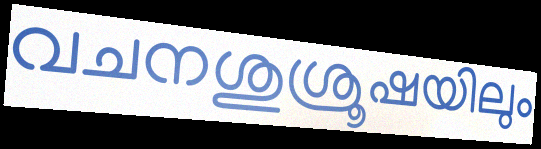
വചനശുശ്രൂഷയിലും